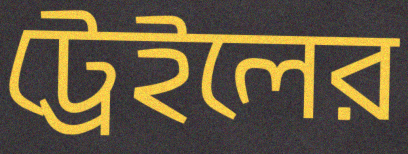
ট্রেইলের